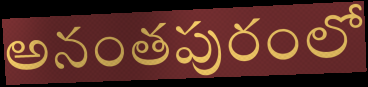
అనంతపురంలో